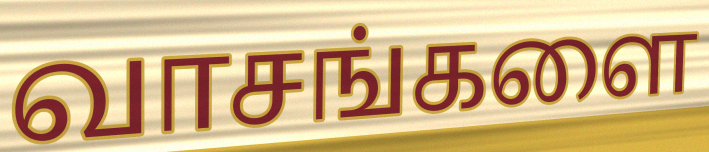
வாசங்களை